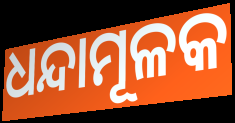
ଧନ୍ଦାମୂଳକ